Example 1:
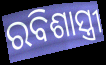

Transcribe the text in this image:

ରବିଶାସ୍ତ୍ରୀ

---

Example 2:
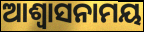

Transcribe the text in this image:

ଆଶ୍ୱାସନାମୟ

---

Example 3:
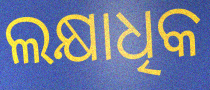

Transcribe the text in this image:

ଲକ୍ଷାଧିକ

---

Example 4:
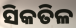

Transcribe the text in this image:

ସିକତିଳ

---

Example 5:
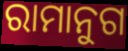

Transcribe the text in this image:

ରାମାନୁଗ